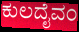
ಕುಲದೈವಂ